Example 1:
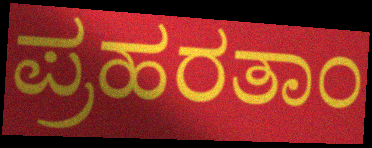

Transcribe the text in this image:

ಪ್ರಹರತಾಂ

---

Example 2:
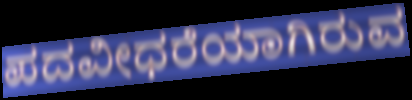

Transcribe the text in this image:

ಪದವೀಧರೆಯಾಗಿರುವ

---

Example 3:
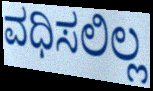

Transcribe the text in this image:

ವಧಿಸಲಿಲ್ಲ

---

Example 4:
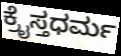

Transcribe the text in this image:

ಕ್ರೈಸ್ತಧರ್ಮ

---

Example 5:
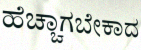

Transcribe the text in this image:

ಹೆಚ್ಚಾಗಬೇಕಾದ